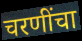
चरणींचा